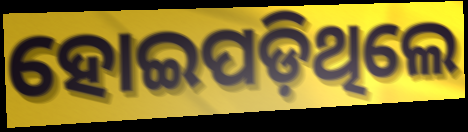
ହୋଇପଡ଼ିଥିଲେ